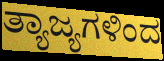
ತ್ಯಾಜ್ಯಗಳಿಂದ